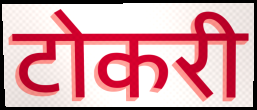
टोकरी